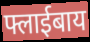
फ्लाईबाय